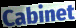
Cabinet